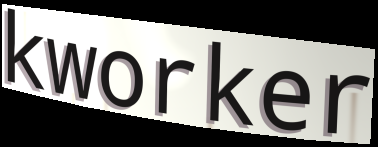
kworker